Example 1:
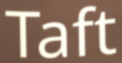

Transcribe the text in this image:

Taft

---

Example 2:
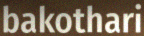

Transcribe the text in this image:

bakothari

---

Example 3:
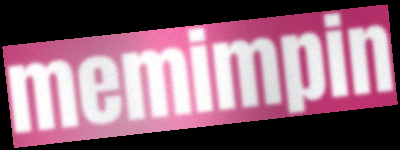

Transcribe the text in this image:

memimpin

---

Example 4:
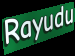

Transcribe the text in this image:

Rayudu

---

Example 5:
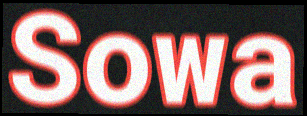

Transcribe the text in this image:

Sowa